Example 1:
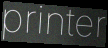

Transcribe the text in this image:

printer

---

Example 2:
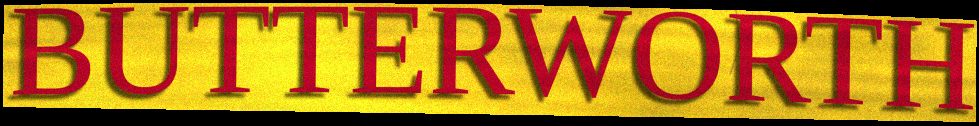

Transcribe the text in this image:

BUTTERWORTH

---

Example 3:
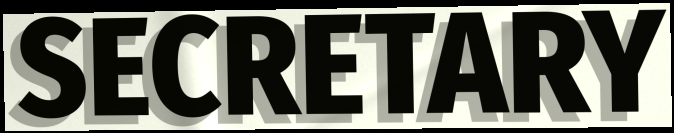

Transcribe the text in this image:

SECRETARY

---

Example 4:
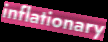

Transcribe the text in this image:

inflationary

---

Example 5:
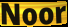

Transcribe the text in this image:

Noor